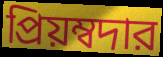
প্রিয়ম্বদার